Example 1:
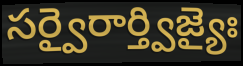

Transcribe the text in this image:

సర్వైరార్త్విజ్యైః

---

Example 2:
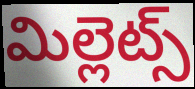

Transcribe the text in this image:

మిల్లెట్స్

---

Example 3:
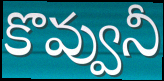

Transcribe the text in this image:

కొవ్వునీ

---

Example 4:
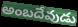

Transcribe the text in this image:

అంబదేవుడు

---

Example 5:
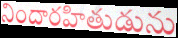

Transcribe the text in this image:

నిందారహితుడును